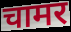
चामर